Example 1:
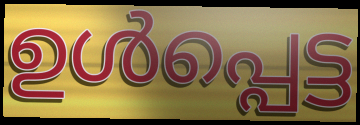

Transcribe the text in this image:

ഉൾപ്പെട്ട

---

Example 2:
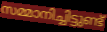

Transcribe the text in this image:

സമ്മാനിച്ചിട്ടുണ്ട്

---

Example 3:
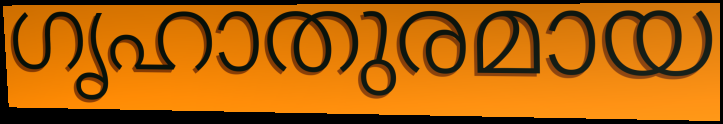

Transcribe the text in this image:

ഗൃഹാതുരമായ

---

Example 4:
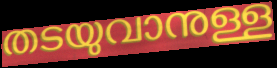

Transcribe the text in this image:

തടയുവാനുള്ള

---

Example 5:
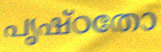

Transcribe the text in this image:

പൃഷ്ഠതോ